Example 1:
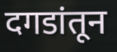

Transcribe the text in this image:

दगडांतून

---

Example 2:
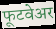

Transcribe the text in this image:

फूटवेअर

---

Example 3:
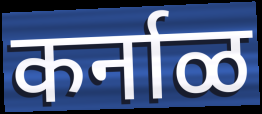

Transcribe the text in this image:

कर्नाळ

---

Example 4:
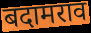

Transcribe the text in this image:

बदामराव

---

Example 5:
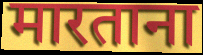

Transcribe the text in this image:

मारताना